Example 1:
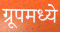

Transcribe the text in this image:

ग्रूपमध्ये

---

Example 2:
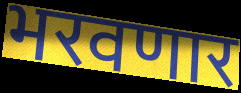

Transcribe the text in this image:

भरवणार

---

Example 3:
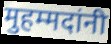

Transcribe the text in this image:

मुहम्मदांनी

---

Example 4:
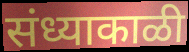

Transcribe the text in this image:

संध्याकाळी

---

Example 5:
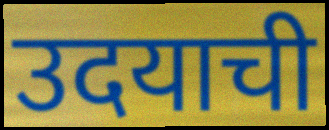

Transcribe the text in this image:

उदयाची